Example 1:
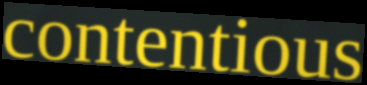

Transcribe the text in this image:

contentious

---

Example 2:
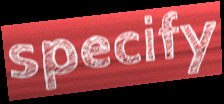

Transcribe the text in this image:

specify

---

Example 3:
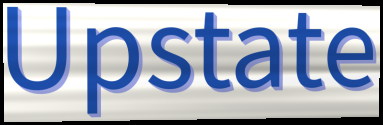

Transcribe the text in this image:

Upstate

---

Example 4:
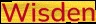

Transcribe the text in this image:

Wisden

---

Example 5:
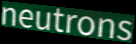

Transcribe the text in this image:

neutrons